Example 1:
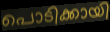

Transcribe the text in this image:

പൊടിക്കായി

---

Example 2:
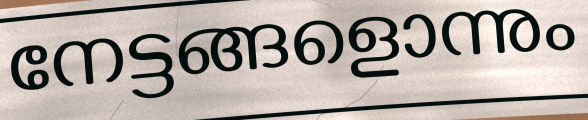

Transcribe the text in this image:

നേട്ടങ്ങളൊന്നും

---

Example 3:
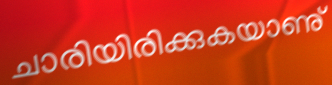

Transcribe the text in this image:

ചാരിയിരിക്കുകയാണു്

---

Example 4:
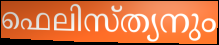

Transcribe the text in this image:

ഫെലിസ്ത്യനും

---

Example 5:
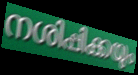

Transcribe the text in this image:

നശിപ്പിക്കയും